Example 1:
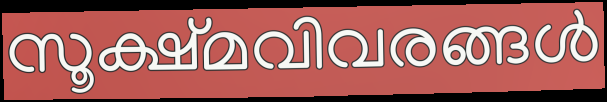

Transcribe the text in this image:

സൂക്ഷ്മവിവരങ്ങൾ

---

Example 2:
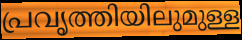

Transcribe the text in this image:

പ്രവൃത്തിയിലുമുള്ള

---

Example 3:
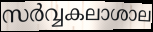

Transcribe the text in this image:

സർവ്വകലാശാല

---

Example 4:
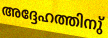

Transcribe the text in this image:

അദ്ദേഹത്തിനു്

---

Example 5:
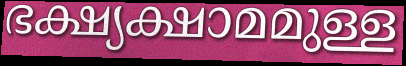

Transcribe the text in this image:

ഭക്ഷ്യക്ഷാമമുള്ള